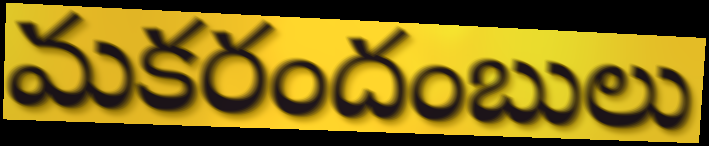
మకరందంబులు